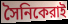
সৈনিকেরাই